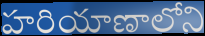
హరియాణాలోని